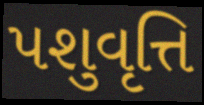
પશુવૃત્તિ